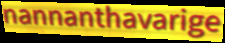
nannanthavarige